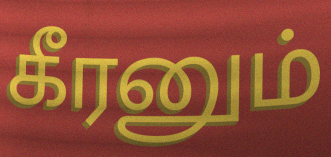
கீரனும்